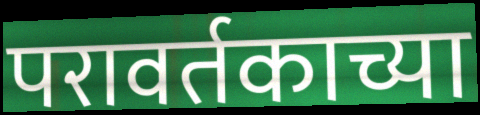
परावर्तकाच्या